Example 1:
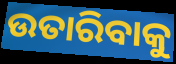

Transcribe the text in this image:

ଉତାରିବାକୁ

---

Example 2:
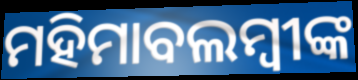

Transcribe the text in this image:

ମହିମାବଲମ୍ବୀଙ୍କ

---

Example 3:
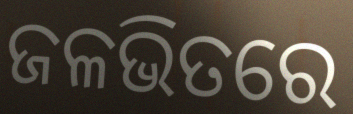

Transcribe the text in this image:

ଜଳଭିତରେ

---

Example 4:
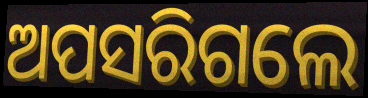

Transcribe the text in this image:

ଅପସରିଗଲେ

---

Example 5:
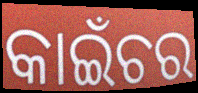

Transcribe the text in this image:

କାଇଁଚର